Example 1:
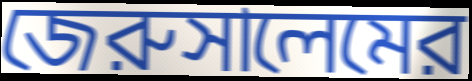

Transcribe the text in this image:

জেরুসালেমের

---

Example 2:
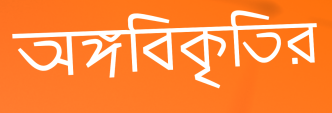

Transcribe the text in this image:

অঙ্গবিকৃতির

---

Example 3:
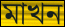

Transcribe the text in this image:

মাখন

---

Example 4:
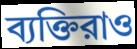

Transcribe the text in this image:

ব্যক্তিরাও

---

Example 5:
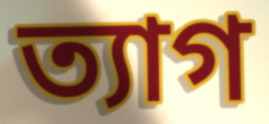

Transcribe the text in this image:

ত্যাগ